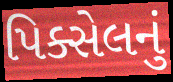
પિક્સેલનું